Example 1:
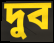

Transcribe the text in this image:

দুব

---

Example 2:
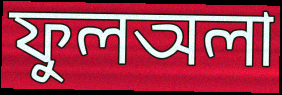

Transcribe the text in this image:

ফুলঅলা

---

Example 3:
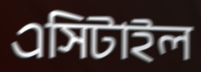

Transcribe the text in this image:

এসিটাইল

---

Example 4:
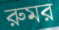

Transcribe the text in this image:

রুমর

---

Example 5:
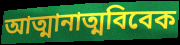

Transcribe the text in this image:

আত্মানাত্মবিবেক